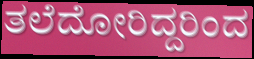
ತಲೆದೋರಿದ್ದರಿಂದ